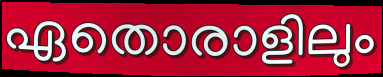
ഏതൊരാളിലും